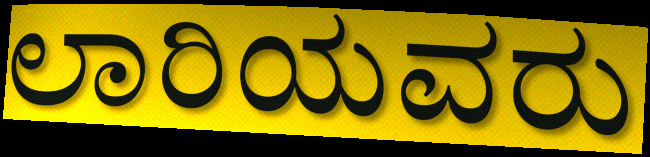
ಲಾರಿಯವರು